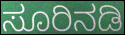
ಸೂರಿನಡಿ